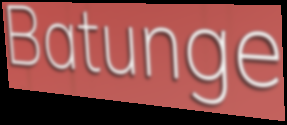
Batunge